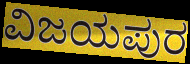
ವಿಜಯಪುರ